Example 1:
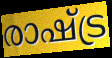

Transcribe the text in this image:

രാഷ്ട്ര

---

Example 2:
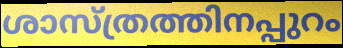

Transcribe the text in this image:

ശാസ്ത്രത്തിനപ്പുറം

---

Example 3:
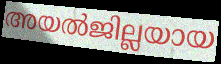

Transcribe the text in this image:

അയൽജില്ലയായ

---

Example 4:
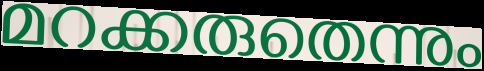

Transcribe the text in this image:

മറക്കരുതെന്നും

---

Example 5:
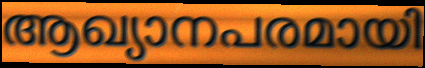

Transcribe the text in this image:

ആഖ്യാനപരമായി